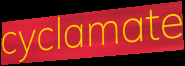
cyclamate